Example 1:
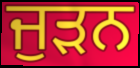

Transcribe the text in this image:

ਜੁਡ਼ਨ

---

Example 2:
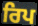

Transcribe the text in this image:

ਰਿਪ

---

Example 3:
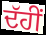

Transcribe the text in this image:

ਦੱਹੀਂ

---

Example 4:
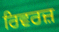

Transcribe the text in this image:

ਰਿਵਰਜ਼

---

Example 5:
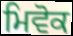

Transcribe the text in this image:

ਮਿਵੋਕ